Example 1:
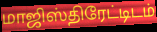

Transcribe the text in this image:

மாஜிஸ்திரேட்டிடம்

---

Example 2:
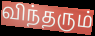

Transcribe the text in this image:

விந்தரும்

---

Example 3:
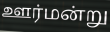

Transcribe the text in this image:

ஊர்மன்று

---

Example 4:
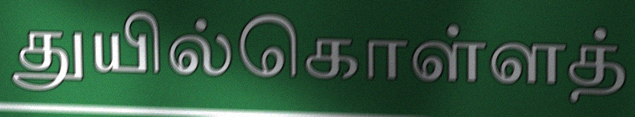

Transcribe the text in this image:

துயில்கொள்ளத்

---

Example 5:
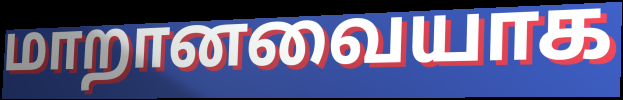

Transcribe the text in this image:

மாறானவையாக